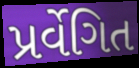
પ્રર્વેગિત